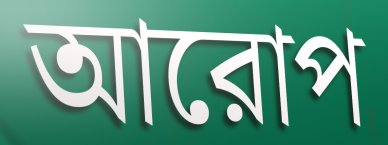
আরোপ